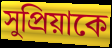
সুপ্রিয়াকে